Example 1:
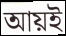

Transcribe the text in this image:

আয়ই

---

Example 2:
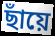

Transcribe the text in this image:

ছাঁয়ে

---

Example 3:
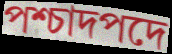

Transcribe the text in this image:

পশ্চাদপদে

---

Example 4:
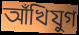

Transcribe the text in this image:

আঁখিযুগ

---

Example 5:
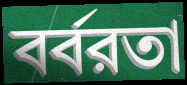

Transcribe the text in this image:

বর্বরতা